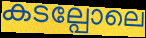
കടല്പോലെ